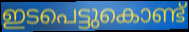
ഇടപെട്ടുകൊണ്ട്